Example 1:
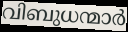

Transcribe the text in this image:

വിബുധന്മാർ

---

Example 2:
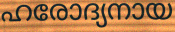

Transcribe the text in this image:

ഹരോദ്യനായ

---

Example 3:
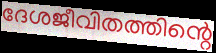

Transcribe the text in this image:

ദേശജീവിതത്തിന്റെ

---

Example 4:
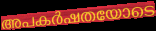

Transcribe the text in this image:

അപകർഷതയോടെ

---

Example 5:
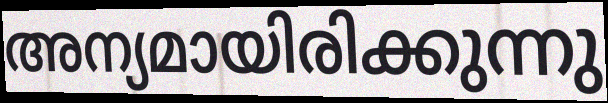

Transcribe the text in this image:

അന്യമായിരിക്കുന്നു